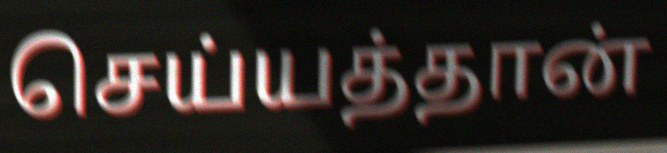
செய்யத்தான்